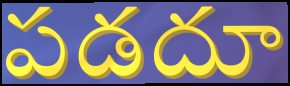
పడదూ